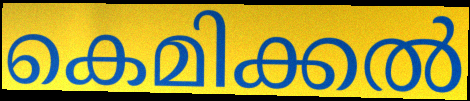
കെമിക്കൽ